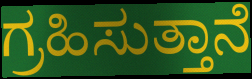
ಗ್ರಹಿಸುತ್ತಾನೆ